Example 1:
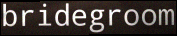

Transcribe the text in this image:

bridegroom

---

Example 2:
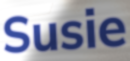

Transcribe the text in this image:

Susie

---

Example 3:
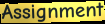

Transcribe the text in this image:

Assignment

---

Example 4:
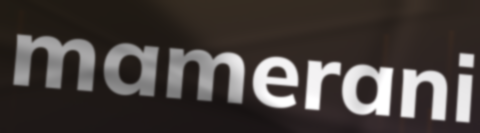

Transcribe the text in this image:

mamerani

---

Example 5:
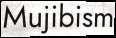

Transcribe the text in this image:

Mujibism